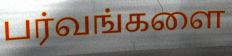
பர்வங்களை